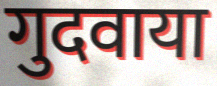
गुदवाया